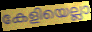
കേളിയെല്ലാ